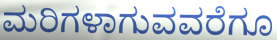
ಮರಿಗಳಾಗುವವರೆಗೂ